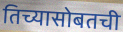
तिच्यासोबतची